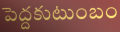
పెద్దకుటుంబం